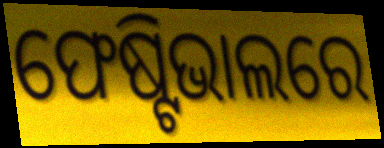
ଫେଷ୍ଟିଭାଲରେ